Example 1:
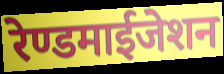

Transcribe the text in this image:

रेण्डमाईजेशन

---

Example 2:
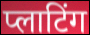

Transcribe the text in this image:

प्लाटिंग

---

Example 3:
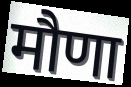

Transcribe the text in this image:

मौणा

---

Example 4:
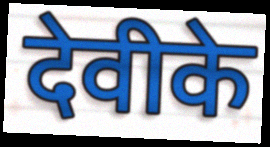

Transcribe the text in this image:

देवीके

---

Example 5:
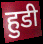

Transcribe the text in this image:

हुडी